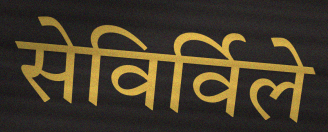
सेविर्विले